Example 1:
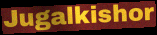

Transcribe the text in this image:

Jugalkishor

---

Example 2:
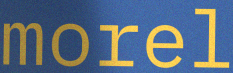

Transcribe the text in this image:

morel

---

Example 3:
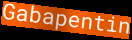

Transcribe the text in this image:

Gabapentin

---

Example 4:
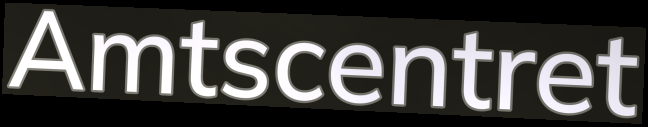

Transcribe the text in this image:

Amtscentret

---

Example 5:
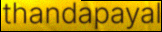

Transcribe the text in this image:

thandapayal